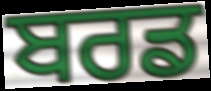
ਬਰਡ